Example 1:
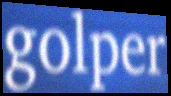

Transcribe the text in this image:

golper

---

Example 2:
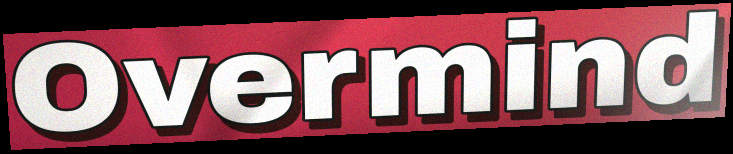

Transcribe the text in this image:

Overmind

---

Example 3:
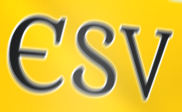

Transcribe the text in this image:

ESV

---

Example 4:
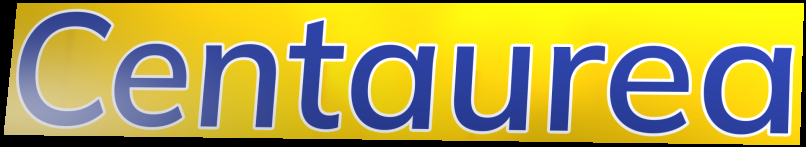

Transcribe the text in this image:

Centaurea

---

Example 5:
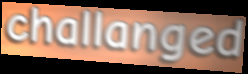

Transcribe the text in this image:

challanged